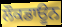
ਲੌਕਡਾਊਨ